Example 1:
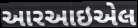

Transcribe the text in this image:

આરઆઇએલ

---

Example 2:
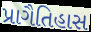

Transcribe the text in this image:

પ્રાગૈતિહાસ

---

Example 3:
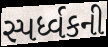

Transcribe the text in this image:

સ્પર્ધ્વકની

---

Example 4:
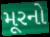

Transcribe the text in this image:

મૂરનો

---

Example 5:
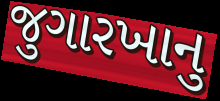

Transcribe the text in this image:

જુગારખાનુ